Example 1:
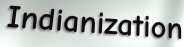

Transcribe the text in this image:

Indianization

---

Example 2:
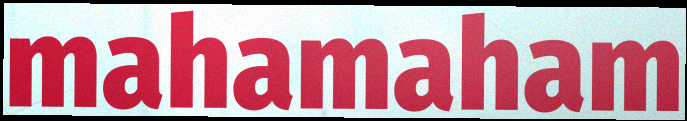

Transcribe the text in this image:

mahamaham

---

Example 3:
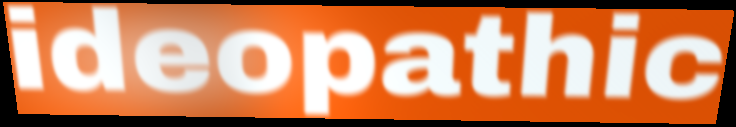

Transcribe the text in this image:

ideopathic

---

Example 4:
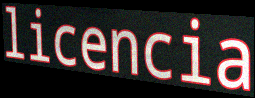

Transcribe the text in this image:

licencia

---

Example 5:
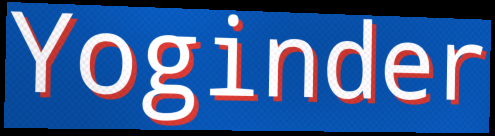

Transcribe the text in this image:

Yoginder